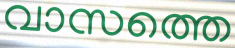
വാസത്തെ